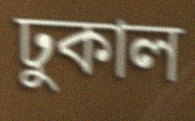
ঢুকাল